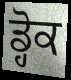
ਡ੍ਹੋਕ